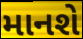
માનશે